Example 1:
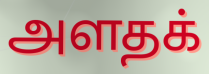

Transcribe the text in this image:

அளதக்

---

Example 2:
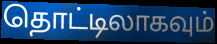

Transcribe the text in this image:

தொட்டிலாகவும்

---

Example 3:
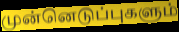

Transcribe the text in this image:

முன்னெடுப்புகளும்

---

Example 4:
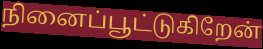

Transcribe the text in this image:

நினைப்பூட்டுகிறேன்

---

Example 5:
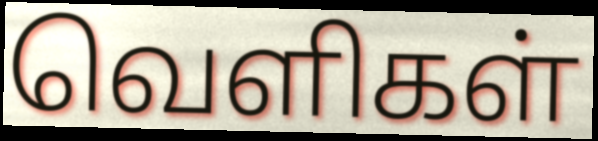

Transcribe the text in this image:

வெளிகள்